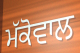
ਮੱਕੋਵਾਲ